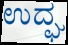
ಉದ್ಘ